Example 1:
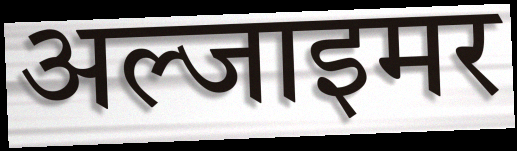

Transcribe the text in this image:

अल्जाइमर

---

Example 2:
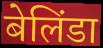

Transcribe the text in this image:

बेलिंडा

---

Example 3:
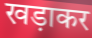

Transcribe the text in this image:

खड़ाकर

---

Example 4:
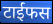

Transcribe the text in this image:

टाईफस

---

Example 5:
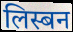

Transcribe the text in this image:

लिस्बन